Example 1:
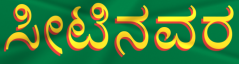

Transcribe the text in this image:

ಸೀಟಿನವರ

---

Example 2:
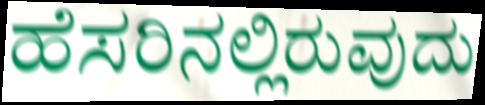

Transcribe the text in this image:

ಹೆಸರಿನಲ್ಲಿರುವುದು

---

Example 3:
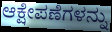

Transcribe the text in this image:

ಆಕ್ಷೇಪಣೆಗಳನ್ನು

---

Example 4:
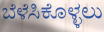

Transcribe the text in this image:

ಬೆಳೆಸಿಕೊಳ್ಳಲು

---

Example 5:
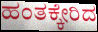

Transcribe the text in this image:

ಹಂತಕ್ಕೇರಿದ